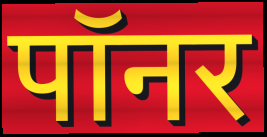
पॉनर